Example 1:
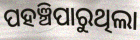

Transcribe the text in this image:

ପହଞ୍ଚିପାରୁଥିଲା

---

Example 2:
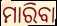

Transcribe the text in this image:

ମାରିବା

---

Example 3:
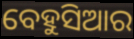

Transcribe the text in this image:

ବେହୁସିଆର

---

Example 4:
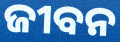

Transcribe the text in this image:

ଜୀବନ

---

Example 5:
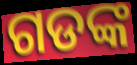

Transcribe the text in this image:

ଗଡଙ୍କ